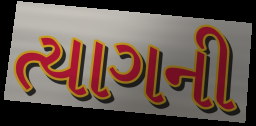
ત્યાગની